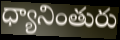
ధ్యానింతురు